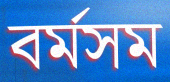
বর্মসম